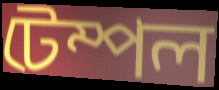
টেম্পল